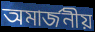
অমার্জনীয়